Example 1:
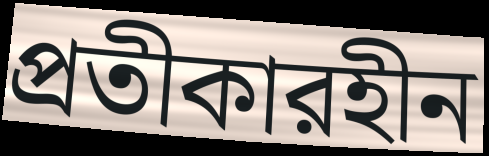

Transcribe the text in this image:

প্রতীকারহীন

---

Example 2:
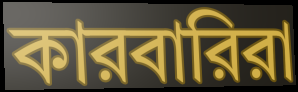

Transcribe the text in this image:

কারবারিরা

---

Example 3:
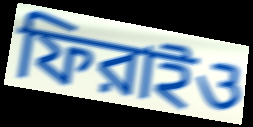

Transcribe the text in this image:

ফিরাইও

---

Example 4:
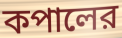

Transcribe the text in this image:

কপালের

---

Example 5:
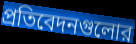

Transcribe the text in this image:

প্রতিবেদনগুলোর